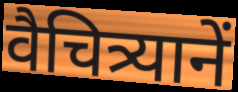
वैचित्र्यानें